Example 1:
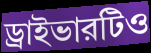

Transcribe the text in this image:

ড্রাইভারটিও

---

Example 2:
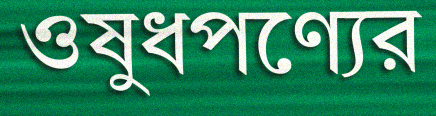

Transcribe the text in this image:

ওষুধপণ্যের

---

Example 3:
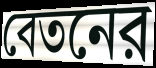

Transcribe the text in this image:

বেতনের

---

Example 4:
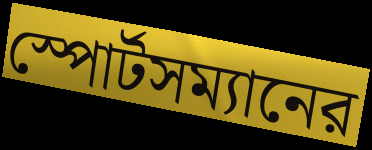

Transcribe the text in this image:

স্পোর্টসম্যানের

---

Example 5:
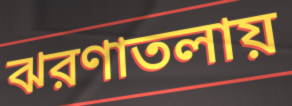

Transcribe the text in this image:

ঝরণাতলায়